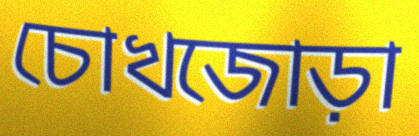
চোখজোড়া